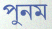
পুনম